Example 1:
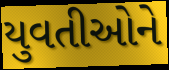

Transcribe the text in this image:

યુવતીઓને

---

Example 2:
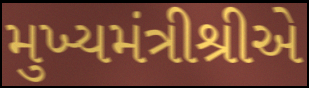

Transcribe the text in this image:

મુખ્યમંત્રીશ્રીએ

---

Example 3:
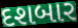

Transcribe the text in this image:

દશબાર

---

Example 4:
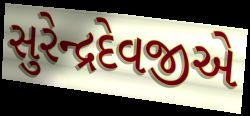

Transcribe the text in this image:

સુરેન્દ્રદેવજીએ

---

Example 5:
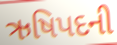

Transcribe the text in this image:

ઋષિપદની